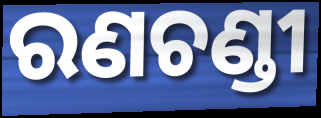
ରଣଚଣ୍ଡୀ